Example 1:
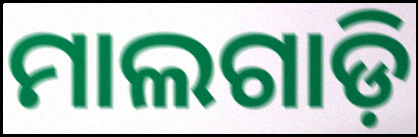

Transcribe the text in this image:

ମାଲଗାଡ଼ି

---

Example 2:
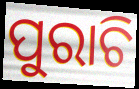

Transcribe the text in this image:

ପୁରାଚି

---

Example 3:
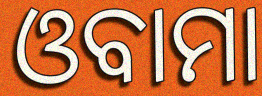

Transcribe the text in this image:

ଓବାମା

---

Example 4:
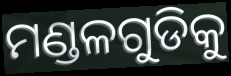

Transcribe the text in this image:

ମଣ୍ଡଳଗୁଡିକୁ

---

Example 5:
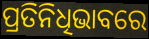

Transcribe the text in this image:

ପ୍ରତିନିଧିଭାବରେ